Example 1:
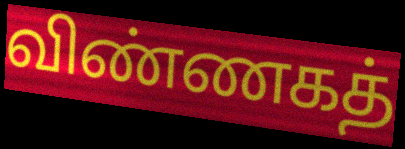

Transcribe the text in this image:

விண்ணகத்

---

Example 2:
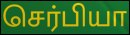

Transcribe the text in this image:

செர்பியா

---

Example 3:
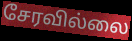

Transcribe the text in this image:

சேரவில்லை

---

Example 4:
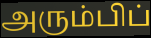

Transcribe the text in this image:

அரும்பிப்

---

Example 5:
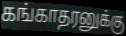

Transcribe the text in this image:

கங்காதரனுக்கு